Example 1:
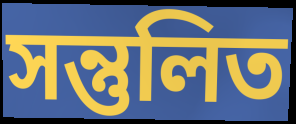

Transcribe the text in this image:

সন্তুলিত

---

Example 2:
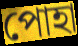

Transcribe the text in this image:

পোহা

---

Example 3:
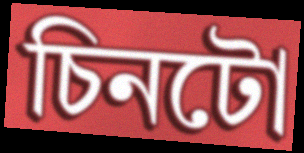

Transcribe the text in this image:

চিনটো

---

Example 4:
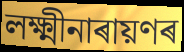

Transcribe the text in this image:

লক্ষ্মীনাৰায়ণৰ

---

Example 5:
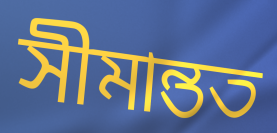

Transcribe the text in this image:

সীমান্তত